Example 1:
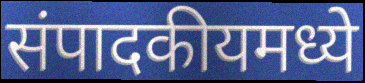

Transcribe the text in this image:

संपादकीयमध्ये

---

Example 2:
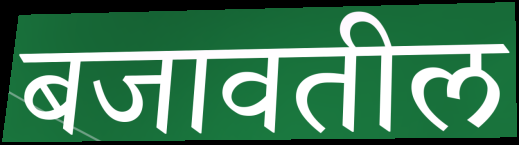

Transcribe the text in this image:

बजावतील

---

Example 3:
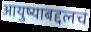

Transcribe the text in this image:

आयुष्याबद्दलचं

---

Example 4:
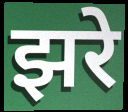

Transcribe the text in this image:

झरे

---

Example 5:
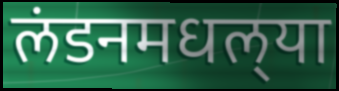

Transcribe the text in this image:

लंडनमधल्या